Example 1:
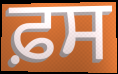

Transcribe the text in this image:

ਫ਼ਸ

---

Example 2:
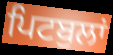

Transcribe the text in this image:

ਪਿਟਬੁਲਾਂ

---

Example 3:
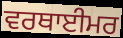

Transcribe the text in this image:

ਵਰਥਾਈਮਰ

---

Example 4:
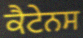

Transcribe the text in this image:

ਕੈਟੇਨਸ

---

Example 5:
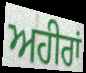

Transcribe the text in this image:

ਅਹੀਰਾਂ